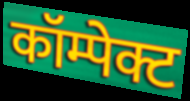
कॉम्पेक्ट